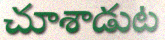
చూశాడుట